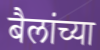
बैलांच्या